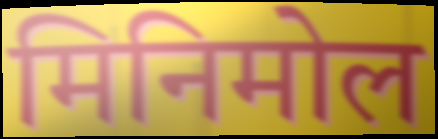
मिनिमोल